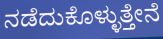
ನಡೆದುಕೊಳ್ಳುತ್ತೇನೆ